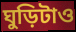
ঘুড়িটাও